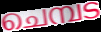
ചെമ്പട